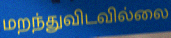
மறந்துவிடவில்லை